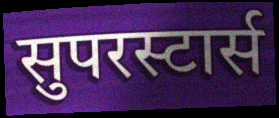
सुपरस्‍टार्स